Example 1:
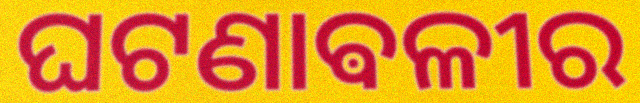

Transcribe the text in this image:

ଘଟଣାଵଳୀର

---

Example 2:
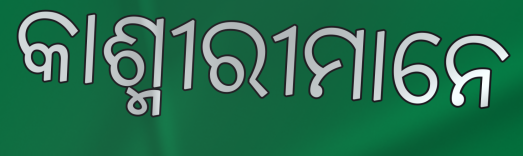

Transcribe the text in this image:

କାଶ୍ମୀରୀମାନେ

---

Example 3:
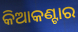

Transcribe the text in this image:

କିଆକଣ୍ଟାର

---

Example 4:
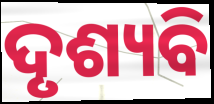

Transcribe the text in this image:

ଦୃଶ୍ୟବି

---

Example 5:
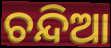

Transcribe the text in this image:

ଚନ୍ଦିଆ